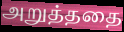
அறுத்ததை